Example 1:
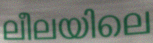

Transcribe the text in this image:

ലീലയിലെ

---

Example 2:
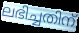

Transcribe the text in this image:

ലഭിച്ചതിന്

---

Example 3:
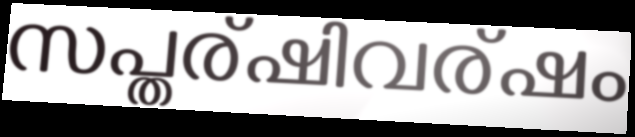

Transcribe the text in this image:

സപ്തര്ഷിവര്ഷം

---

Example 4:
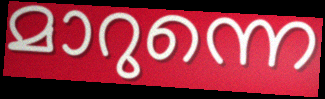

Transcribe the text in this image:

മാറുന്നെ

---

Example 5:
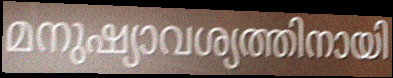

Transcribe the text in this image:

മനുഷ്യാവശ്യത്തിനായി